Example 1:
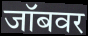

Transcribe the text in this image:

जॉबवर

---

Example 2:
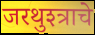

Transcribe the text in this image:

जरथुश्त्राचे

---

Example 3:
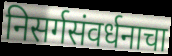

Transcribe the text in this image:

निसर्गसंवर्धनाचा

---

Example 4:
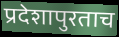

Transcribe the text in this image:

प्रदेशापुरताच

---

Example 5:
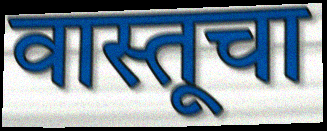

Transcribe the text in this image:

वास्तूचा